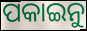
ପକାଇନୁ